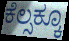
ಕೆಲ್ಸಕ್ಕೂ